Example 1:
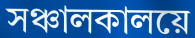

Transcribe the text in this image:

সঞ্চালকালয়ে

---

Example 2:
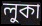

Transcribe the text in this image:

লুকা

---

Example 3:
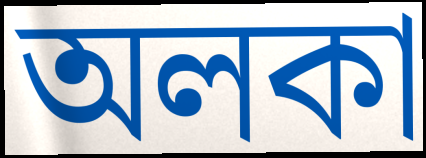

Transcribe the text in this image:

অলকা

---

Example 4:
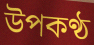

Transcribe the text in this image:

উপকণ্ঠ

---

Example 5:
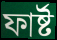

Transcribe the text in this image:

ফাৰ্ষ্ট